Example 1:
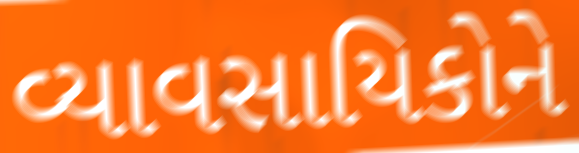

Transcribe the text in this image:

વ્યાવસાયિકોને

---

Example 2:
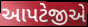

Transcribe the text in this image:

આપટેજીએ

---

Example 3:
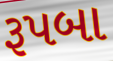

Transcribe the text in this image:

રૂપબા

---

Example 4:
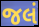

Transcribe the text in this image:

જલં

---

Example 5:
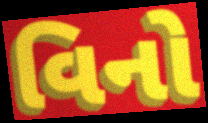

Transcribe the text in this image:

વિનો